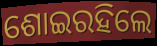
ଶୋଇରହିଲେ